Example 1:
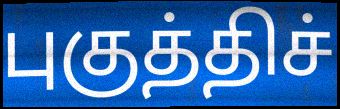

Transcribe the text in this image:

புகுத்திச்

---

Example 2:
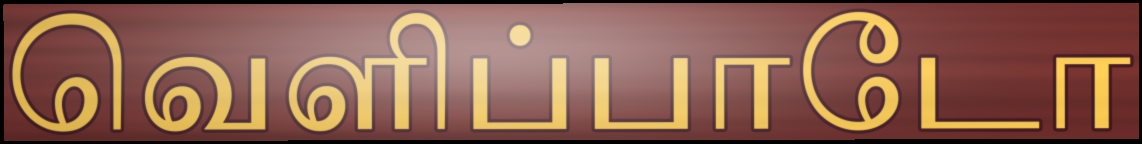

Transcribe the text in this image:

வெளிப்பாடோ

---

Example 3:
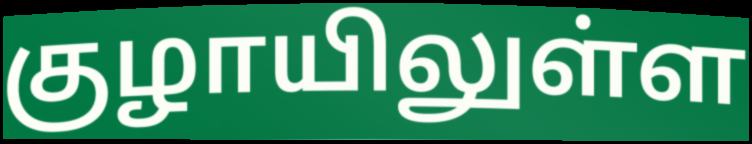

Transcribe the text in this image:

குழாயிலுள்ள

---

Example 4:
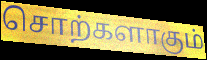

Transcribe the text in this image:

சொற்களாகும்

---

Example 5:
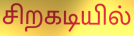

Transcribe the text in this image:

சிறகடியில்